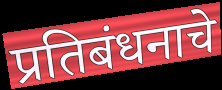
प्रतिबंधनाचे